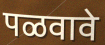
पळवावे